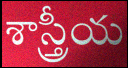
శాస్త్రీయ